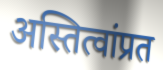
अस्तित्वांप्रत